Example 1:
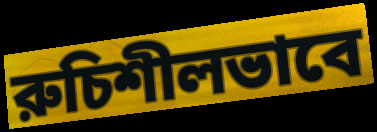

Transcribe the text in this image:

রুচিশীলভাবে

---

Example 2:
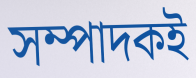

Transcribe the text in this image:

সম্পাদকই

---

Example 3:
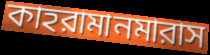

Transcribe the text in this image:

কাহরামানমারাস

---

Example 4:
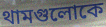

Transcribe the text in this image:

থামগুলোকে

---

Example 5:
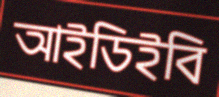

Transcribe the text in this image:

আইডিইবি